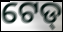
ଟେଡ୍